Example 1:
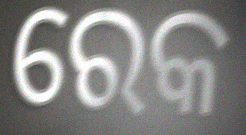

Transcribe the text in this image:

ରେକ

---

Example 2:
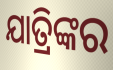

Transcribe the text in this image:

ଯାତ୍ରିଙ୍କର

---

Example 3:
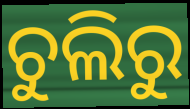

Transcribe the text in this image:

ଚୁଲିରୁ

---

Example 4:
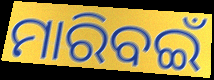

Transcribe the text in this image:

ମାରିବଇଁ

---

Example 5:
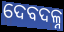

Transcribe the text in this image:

ଦେବଦଳ୍ନ